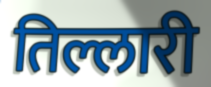
तिल्लारी